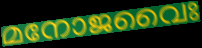
മനോജവൈഃ